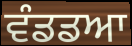
ਵੰਡਡਆ